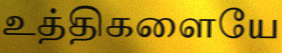
உத்திகளையே